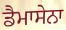
ਡੈਮਾਸੇਨਾ